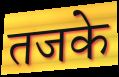
तजके